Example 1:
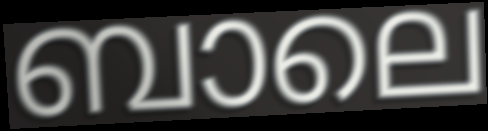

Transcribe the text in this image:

ബാലെ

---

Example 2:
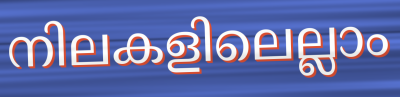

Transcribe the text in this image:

നിലകളിലെല്ലാം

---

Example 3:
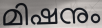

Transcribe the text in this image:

മിഷനും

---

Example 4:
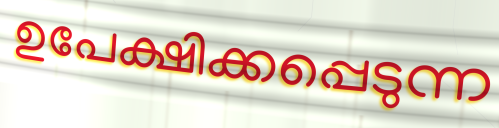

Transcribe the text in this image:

ഉപേക്ഷിക്കപ്പെടുന്ന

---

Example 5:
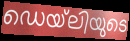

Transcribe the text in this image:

ഡെയ്‌ലിയുടെ